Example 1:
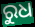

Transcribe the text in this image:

ରୁଧ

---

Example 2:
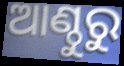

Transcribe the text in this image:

ଆଣ୍ଠୁରୁ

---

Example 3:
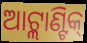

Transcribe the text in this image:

ଆଟ୍ଲାଣ୍ଟିକ୍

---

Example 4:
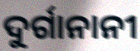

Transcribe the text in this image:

ଦୁର୍ଗାନାନୀ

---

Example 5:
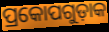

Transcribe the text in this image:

ପ୍ରକୋପଗୁଡ଼ାକ